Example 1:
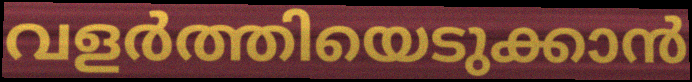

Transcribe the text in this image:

വളർത്തിയെടുക്കാൻ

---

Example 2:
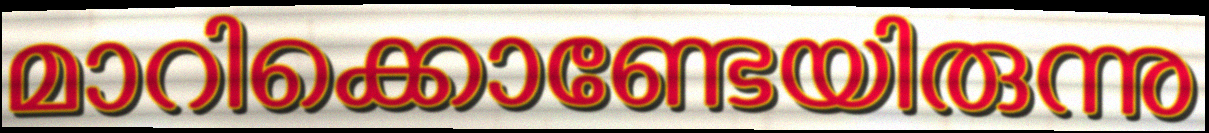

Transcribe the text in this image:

മാറിക്കൊണ്ടേയിരുന്നു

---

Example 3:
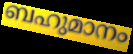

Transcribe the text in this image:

ബഹുമാനം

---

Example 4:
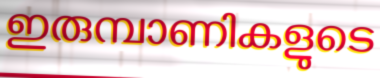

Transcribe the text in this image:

ഇരുമ്പാണികളുടെ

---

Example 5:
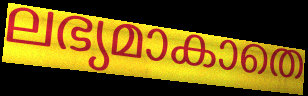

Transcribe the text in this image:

ലഭ്യമാകാതെ